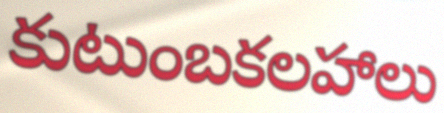
కుటుంబకలహాలు